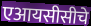
एआयसीसीचे